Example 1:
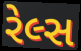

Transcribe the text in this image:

રેલ્સ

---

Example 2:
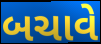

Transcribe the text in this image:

બચાવે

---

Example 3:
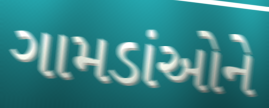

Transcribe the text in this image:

ગામડાંઓને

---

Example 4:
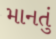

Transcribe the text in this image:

માનતું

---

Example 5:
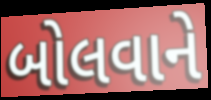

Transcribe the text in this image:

બોલવાને